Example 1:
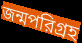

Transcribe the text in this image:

জন্মপরিগ্রহ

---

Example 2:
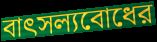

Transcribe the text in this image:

বাৎসল্যবোধের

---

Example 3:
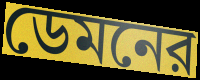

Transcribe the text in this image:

ডেমনের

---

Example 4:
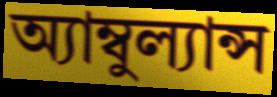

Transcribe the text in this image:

অ্যাম্বুল্যান্স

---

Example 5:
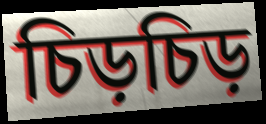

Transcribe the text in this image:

চিড়চিড়